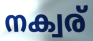
നക്വര്